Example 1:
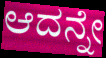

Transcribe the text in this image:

ಆದನ್ನೇ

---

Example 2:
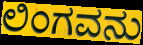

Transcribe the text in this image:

ಲಿಂಗವನು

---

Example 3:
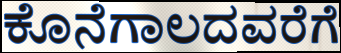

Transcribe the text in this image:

ಕೊನೆಗಾಲದವರೆಗೆ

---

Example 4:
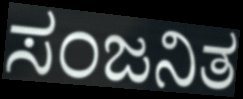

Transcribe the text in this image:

ಸಂಜನಿತ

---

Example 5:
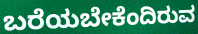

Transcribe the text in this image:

ಬರೆಯಬೇಕೆಂದಿರುವ